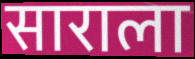
साराला